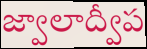
జ్వాలాద్వీప